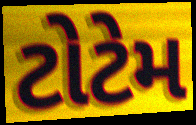
ટોટેમ